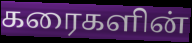
கரைகளின்